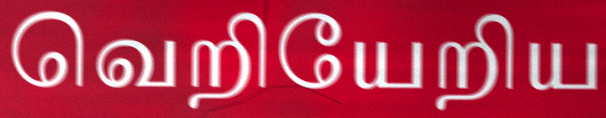
வெறியேறிய